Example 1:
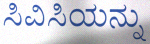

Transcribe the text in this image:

ಸಿವಿಸಿಯನ್ನು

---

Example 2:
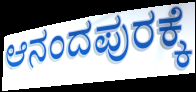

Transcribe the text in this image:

ಆನಂದಪುರಕ್ಕೆ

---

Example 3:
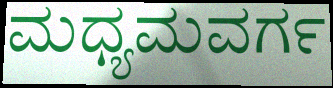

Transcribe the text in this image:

ಮಧ್ಯಮವರ್ಗ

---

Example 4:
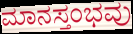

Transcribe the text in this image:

ಮಾನಸ್ತಂಭವು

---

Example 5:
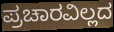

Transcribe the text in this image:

ಪ್ರಚಾರವಿಲ್ಲದ